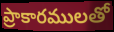
ప్రాకారములతో